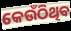
କେଉଁଠିଥିବ